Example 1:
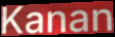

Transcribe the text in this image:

Kanan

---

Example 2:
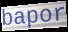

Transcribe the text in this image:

bapor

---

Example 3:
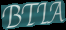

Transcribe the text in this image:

BTIA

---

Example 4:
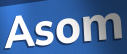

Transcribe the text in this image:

Asom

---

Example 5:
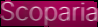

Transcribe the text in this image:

Scoparia